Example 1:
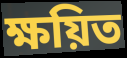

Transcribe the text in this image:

ক্ষয়িত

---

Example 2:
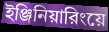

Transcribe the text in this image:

ইঞ্জিনিয়ারিংয়ে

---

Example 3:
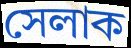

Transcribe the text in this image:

সেলাক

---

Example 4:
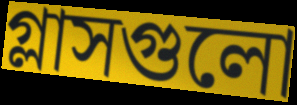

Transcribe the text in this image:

গ্লাসগুলো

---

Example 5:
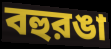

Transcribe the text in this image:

বহুরঙা